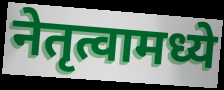
नेतृत्वामध्ये